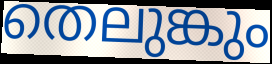
തെലുങ്കും